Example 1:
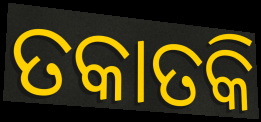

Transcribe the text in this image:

ତକାତକି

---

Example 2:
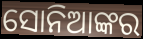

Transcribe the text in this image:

ସୋନିଆଙ୍କର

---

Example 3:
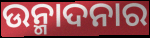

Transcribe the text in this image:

ଉନ୍ମାଦନାର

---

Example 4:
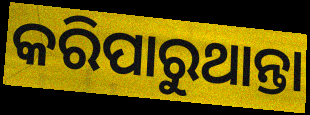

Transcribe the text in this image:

କରିପାରୁଥାନ୍ତା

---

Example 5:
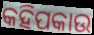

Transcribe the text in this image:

କହିପକାଉ